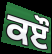
ਕੲੌ